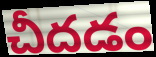
చీదడం